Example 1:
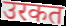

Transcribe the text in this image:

उरकत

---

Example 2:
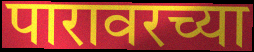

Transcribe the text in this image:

पारावरच्या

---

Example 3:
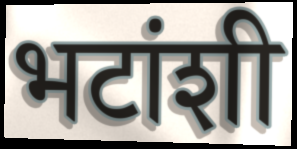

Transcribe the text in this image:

भटांशी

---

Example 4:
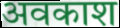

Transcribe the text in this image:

अवकाश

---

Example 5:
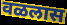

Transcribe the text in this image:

वळलास